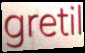
gretil